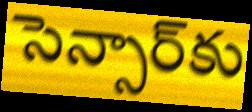
సెన్సార్‌కు